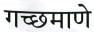
गच्छमाणे